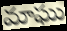
మాఘు